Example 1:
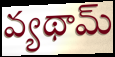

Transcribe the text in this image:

వ్యథామ్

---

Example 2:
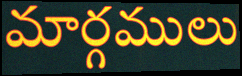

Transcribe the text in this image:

మార్గములు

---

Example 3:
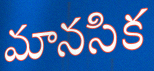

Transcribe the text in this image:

మానసిక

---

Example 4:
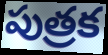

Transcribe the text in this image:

పుత్రక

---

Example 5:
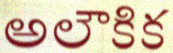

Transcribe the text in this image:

అలౌకిక